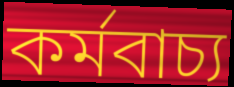
কৰ্মবাচ্য